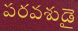
పరవశుడై